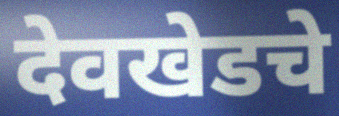
देवखेडचे